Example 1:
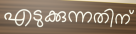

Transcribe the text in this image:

എടുക്കുന്നതിന്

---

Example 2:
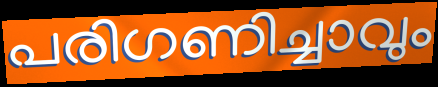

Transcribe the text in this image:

പരിഗണിച്ചാവും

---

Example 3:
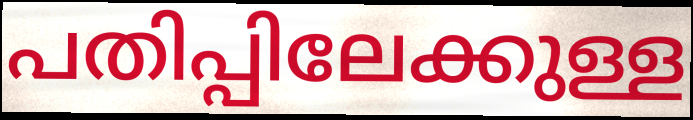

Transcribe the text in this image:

പതിപ്പിലേക്കുള്ള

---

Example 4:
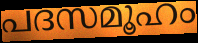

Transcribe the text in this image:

പദസമൂഹം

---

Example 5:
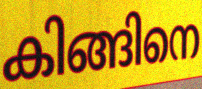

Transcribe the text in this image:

കിങ്ങിനെ